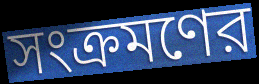
সংক্রমণের